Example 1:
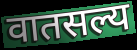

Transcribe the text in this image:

वातसल्य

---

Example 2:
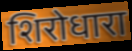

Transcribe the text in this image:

शिरोधारा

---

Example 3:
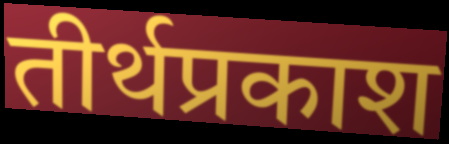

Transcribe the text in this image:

तीर्थप्रकाश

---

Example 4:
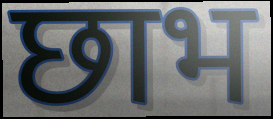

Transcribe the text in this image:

छाभ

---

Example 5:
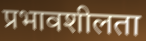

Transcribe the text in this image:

प्रभावशीलता